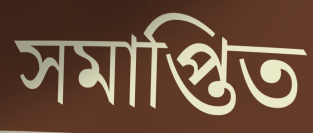
সমাপ্তিত